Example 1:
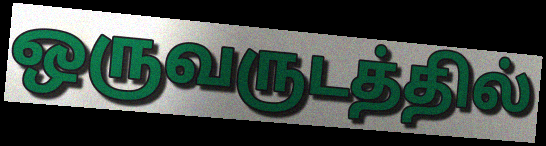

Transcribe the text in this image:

ஒருவருடத்தில்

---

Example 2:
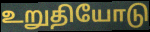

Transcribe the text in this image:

உறுதியோடு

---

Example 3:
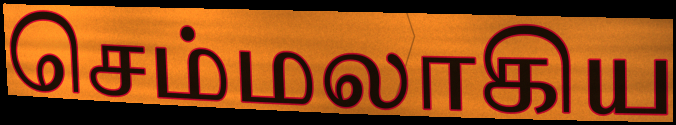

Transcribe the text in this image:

செம்மலாகிய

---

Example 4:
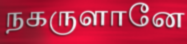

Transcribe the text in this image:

நகருளானே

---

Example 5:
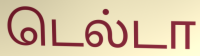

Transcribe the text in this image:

டெல்டா